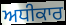
ਅਧੀਕਾਰ